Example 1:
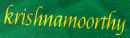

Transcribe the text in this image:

krishnamoorthy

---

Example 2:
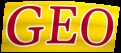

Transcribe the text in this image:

GEO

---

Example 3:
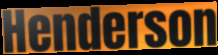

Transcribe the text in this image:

Henderson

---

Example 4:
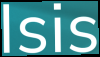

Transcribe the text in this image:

Isis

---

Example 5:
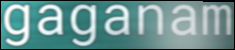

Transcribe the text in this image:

gaganam